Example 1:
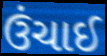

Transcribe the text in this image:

ઉંચાઈ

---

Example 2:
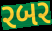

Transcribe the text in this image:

રબર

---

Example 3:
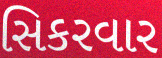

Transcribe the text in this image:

સિકરવાર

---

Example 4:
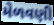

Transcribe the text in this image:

મેળવણી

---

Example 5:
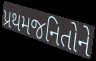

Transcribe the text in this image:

પ્રથમજનિતોને